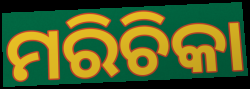
ମରିଚିକା